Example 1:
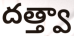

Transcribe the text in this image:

దత్త్వా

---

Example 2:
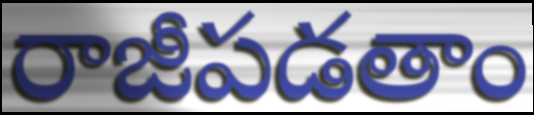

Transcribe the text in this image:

రాజీపడతాం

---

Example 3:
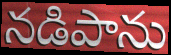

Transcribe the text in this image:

నడిపాను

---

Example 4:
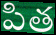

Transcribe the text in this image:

పిత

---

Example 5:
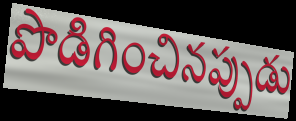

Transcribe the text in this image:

పొడిగించినప్పుడు